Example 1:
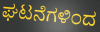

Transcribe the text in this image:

ಘಟನೆಗಳಿಂದ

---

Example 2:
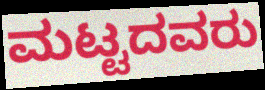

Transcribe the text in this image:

ಮಟ್ಟದವರು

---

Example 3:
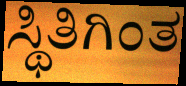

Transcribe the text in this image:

ಸ್ಥಿತಿಗಿಂತ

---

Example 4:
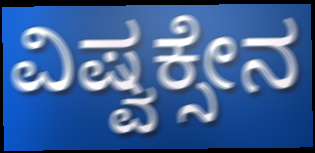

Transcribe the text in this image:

ವಿಷ್ವಕ್ಸೇನ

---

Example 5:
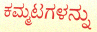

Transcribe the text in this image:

ಕಮ್ಮಟಗಳನ್ನು